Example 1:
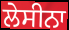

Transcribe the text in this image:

ਲੇਸੀਨਾ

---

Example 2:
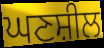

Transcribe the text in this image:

ਘਣਸ਼ੀਲ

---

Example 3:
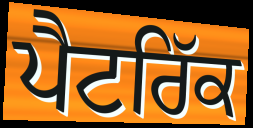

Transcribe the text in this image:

ਪੈਟਰਿੱਕ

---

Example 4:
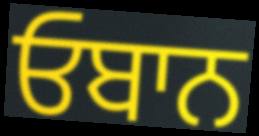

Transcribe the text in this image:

ਓਬਾਨ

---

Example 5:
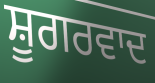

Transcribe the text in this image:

ਸ਼ੂਗਰਵਾਦ